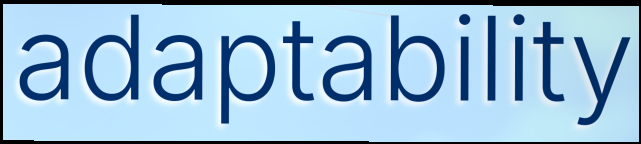
adaptability